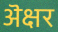
ऄक्षर